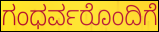
ಗಂಧರ್ವರೊಂದಿಗೆ